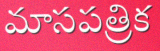
మాసపత్రిక